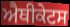
ਐਥੀਕੇਟਸ